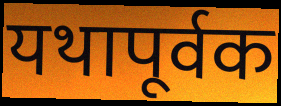
यथापूर्वक